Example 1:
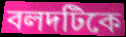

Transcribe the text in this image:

বলদটিকে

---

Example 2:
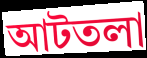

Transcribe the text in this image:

আটতলা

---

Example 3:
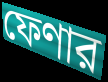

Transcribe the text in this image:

ফেণার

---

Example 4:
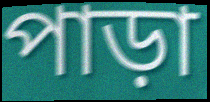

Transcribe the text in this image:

পাড়া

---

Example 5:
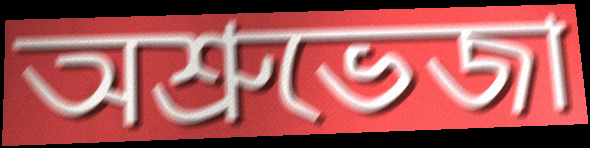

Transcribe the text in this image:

অশ্রুভেজা